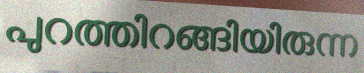
പുറത്തിറങ്ങിയിരുന്ന